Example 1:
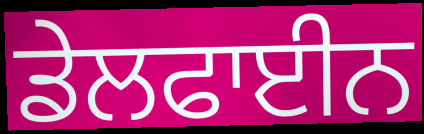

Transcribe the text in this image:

ਡੇਲਫਾਈਨ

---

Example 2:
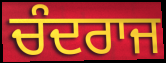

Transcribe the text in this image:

ਚੰਦਰਾਜ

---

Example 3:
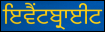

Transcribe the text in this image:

ਇਵੈਂਟਬ੍ਰਾਈਟ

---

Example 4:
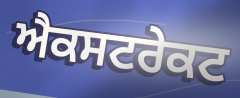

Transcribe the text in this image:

ਐਕਸਟਰੇਕਟ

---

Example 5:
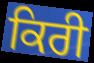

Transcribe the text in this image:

ਕਿਰੀ